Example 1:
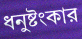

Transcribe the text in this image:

ধনুষ্টংকার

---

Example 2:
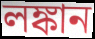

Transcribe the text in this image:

লঙ্কান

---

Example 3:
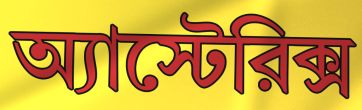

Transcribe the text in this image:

অ্যাস্টেরিক্স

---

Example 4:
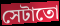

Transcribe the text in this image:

সেটাতো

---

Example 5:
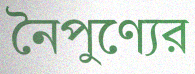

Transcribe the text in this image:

নৈপুণ্যের